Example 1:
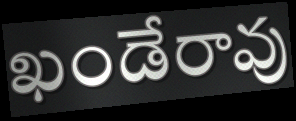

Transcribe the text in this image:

ఖండేరావు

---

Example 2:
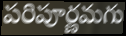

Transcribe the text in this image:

పరిపూర్ణమగు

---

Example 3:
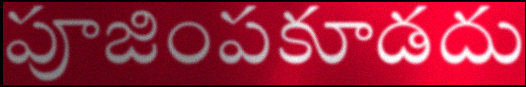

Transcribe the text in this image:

పూజింపకూడదు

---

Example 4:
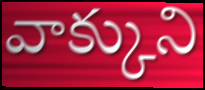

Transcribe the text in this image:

వాక్కుని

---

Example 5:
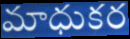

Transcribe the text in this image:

మాధుకర